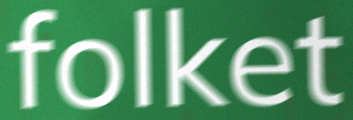
folket